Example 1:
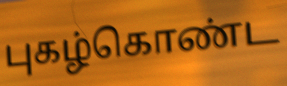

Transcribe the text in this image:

புகழ்கொண்ட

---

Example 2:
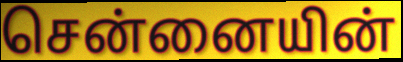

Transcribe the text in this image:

சென்னையின்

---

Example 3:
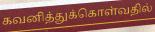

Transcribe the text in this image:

கவனித்துக்கொள்வதில்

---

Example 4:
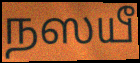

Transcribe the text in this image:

நஸயீ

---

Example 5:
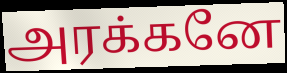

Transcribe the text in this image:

அரக்கனே